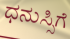
ಧನುಸ್ಸಿಗೆ